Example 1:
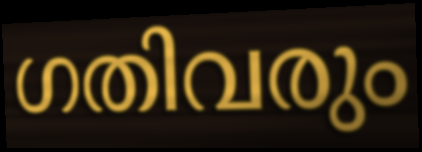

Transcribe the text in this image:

ഗതിവരും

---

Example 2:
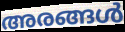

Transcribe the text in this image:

അരങ്ങൾ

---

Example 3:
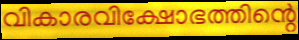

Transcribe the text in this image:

വികാരവിക്ഷോഭത്തിന്റെ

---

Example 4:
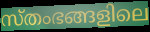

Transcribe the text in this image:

സ്തംഭങ്ങളിലെ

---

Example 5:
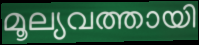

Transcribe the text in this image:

മൂല്യവത്തായി